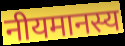
नीयमानस्य